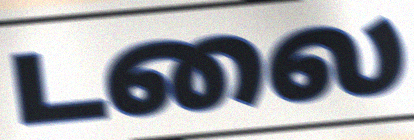
டலை